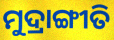
ମୁଦ୍ରାଙ୍ଗୀତି